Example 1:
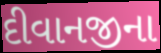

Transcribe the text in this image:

દીવાનજીના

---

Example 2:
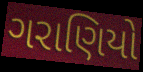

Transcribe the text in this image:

ગરાણિયો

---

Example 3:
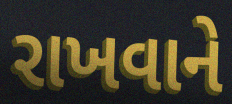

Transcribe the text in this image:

રાખવાને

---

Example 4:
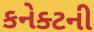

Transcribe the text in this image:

કનેક્ટની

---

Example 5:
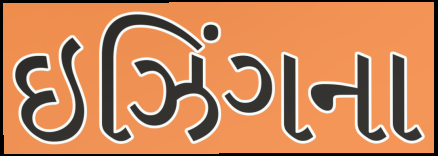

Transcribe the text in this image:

ઇઝિંગના